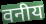
वनीय